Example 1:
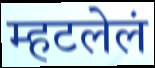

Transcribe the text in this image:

म्हटलेलं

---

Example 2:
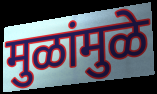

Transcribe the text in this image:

मुळांमुळे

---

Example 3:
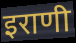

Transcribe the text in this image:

इराणी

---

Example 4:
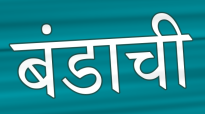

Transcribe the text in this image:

बंडाची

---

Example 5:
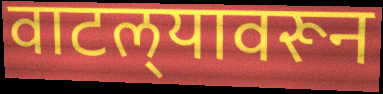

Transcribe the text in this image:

वाटल्यावरून